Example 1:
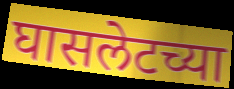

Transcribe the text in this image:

घासलेटच्या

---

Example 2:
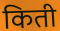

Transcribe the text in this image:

किती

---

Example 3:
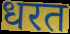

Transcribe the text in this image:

धरत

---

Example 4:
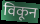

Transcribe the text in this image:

विकून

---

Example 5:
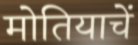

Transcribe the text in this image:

मोतियाचें